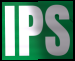
IPS